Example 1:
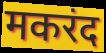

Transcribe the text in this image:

मकरंद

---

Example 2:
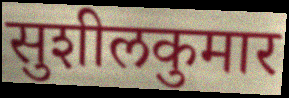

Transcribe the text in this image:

सुशीलकुमार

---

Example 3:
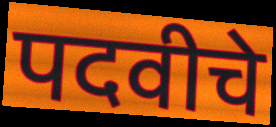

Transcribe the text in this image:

पदवीचे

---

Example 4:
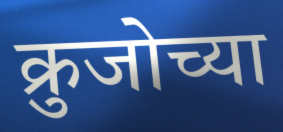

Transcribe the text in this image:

क्रुजोच्या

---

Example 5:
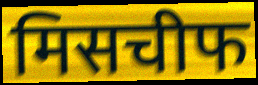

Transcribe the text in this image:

मिसचीफ